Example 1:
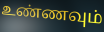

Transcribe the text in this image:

உண்ணவும்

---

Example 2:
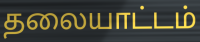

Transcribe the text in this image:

தலையாட்டம்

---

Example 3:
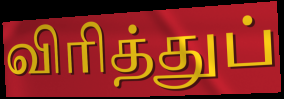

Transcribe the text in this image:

விரித்துப்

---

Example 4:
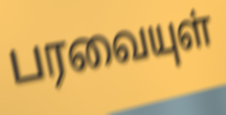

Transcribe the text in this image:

பரவையுள்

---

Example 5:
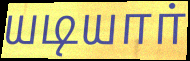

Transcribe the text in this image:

யடியார்